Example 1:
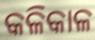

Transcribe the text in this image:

କଳିକାଳ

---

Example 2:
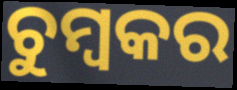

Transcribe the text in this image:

ଚୁମ୍ବକର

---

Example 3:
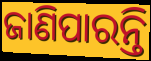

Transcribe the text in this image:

ଜାଣିପାରନ୍ତି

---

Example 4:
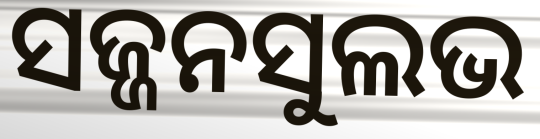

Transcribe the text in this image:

ସଜ୍ଜନସୁଲଭ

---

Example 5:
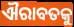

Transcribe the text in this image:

ଐରାବତକୁ